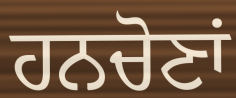
ਹਨਚੋਣਾਂ